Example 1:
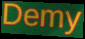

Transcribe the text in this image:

Demy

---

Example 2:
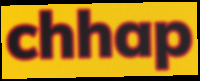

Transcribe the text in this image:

chhap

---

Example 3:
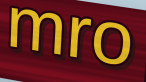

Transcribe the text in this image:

mro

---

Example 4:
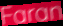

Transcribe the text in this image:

Faran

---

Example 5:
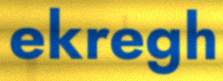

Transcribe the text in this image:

ekregh